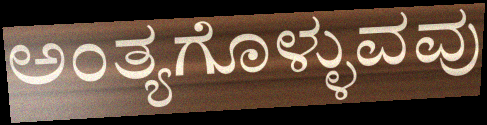
ಅಂತ್ಯಗೊಳ್ಳುವವು